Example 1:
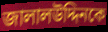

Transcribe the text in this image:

জালালউদ্দিনকে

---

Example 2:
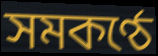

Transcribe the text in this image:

সমকণ্ঠে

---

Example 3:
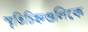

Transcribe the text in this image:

স্মৃতিচিহ্নগুলিকে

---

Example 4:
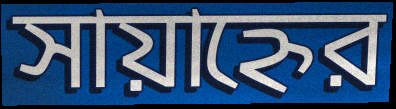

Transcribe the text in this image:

সায়াহ্নের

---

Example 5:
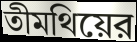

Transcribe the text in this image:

তীমথিয়ের